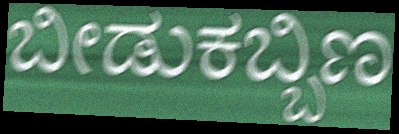
ಬೀಡುಕಬ್ಬಿಣ